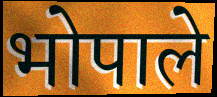
भोपाले